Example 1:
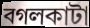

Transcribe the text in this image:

বগলকাটা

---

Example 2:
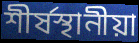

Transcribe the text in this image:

শীর্ষস্থানীয়া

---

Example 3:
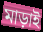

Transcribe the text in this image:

মাড়াই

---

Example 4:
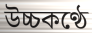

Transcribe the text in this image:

উচ্চকণ্ঠে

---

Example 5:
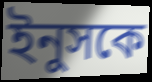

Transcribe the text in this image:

ইনুসকে